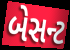
બેસન્ટ